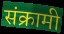
संक्रामी